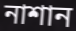
নাশান